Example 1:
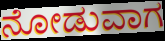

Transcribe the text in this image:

ನೋಡುವಾಗ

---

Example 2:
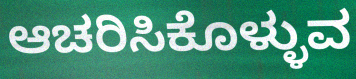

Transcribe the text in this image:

ಆಚರಿಸಿಕೊಳ್ಳುವ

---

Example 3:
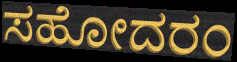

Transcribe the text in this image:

ಸಹೋದರಂ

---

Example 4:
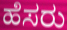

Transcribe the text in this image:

ಹೆಸರು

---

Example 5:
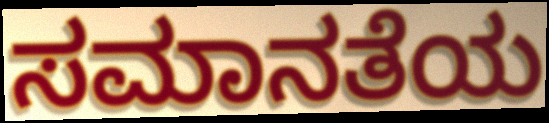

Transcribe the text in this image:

ಸಮಾನತೆಯ